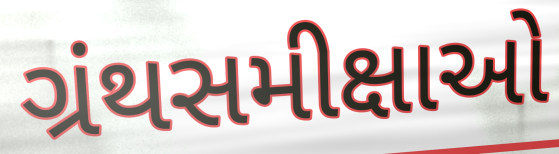
ગ્રંથસમીક્ષાઓ